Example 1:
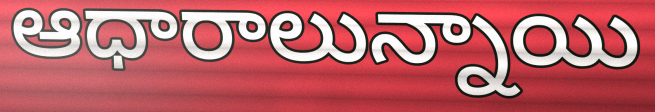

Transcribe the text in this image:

ఆధారాలున్నాయి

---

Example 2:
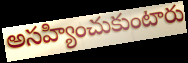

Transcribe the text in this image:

అసహ్యించుకుంటారు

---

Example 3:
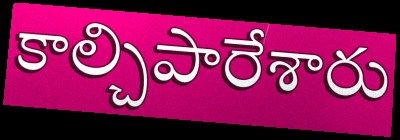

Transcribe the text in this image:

కాల్చిపారేశారు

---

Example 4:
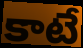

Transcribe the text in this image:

కాటే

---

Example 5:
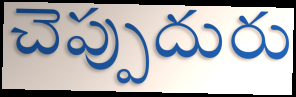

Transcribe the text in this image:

చెప్పుదురు